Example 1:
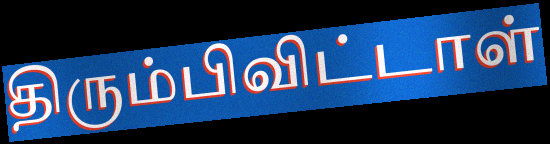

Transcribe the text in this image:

திரும்பிவிட்டாள்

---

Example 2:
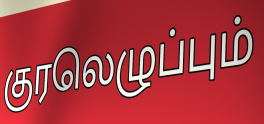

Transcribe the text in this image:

குரலெழுப்பும்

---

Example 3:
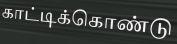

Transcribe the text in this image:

காட்டிக்கொண்டு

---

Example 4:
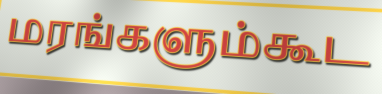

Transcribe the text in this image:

மரங்களும்கூட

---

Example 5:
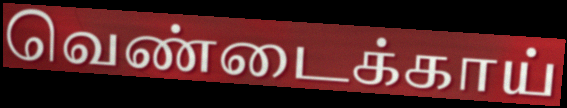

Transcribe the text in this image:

வெண்டைக்காய்